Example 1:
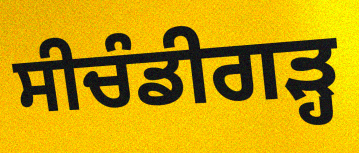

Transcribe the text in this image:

ਸੀਚੰਡੀਗੜ੍ਹ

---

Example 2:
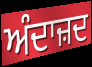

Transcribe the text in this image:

ਅੰਦਾਜ਼ਦ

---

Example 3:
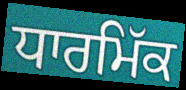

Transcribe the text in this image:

ਧਾਰਮਿੱਕ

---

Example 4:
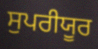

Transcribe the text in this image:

ਸੁਪਰੀਯੂਰ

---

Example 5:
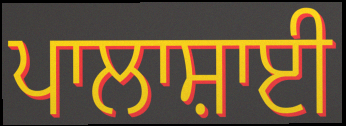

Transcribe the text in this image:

ਪਾਲਾਸ਼ਾਈ